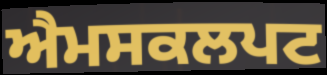
ਐਮਸਕਲਪਟ